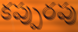
కప్పురపు